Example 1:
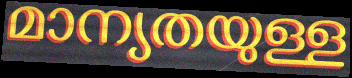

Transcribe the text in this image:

മാന്യതയുള്ള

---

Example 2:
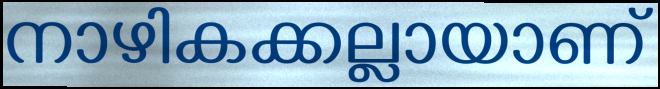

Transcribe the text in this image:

നാഴികക്കല്ലായാണ്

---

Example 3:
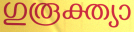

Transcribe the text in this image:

ഗുരൂക്ത്യാ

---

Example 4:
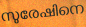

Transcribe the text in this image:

സുരേഷിനെ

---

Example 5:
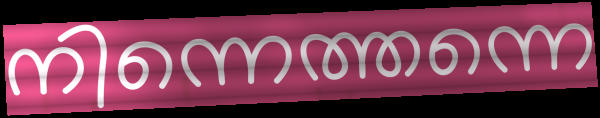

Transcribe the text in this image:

നിന്നെത്തന്നെ